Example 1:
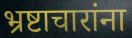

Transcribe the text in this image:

भ्रष्टाचारांना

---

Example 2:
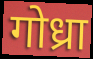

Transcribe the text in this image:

गोध्रा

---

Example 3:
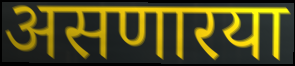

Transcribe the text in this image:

असणारया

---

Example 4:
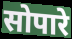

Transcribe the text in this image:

सोपारे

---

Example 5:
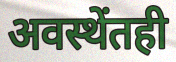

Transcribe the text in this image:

अवस्थेंतही